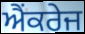
ਐਂਕਰੇਜ